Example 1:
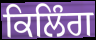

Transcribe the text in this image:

ਕਿਲਿੰਗ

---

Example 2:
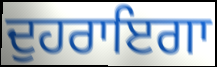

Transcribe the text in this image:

ਦੁਹਰਾਇਗਾ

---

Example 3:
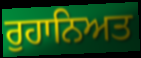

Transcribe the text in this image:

ਰੁਹਾਨਿਅਤ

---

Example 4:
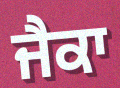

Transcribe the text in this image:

ਜੈਕਾ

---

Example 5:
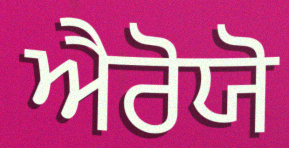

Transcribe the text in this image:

ਐਰੋਯੋ